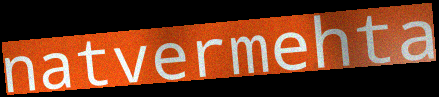
natvermehta